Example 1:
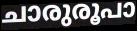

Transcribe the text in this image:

ചാരുരൂപാ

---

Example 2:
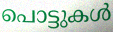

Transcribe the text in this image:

പൊട്ടുകൾ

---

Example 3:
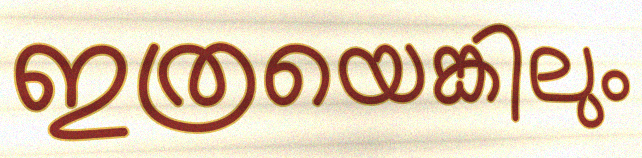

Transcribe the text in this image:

ഇത്രയെങ്കിലും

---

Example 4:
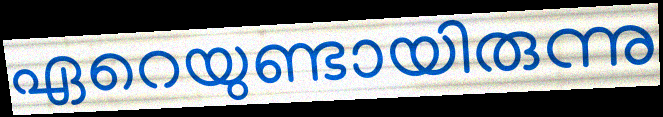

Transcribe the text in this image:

ഏറെയുണ്ടായിരുന്നു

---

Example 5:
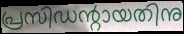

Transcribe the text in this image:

പ്രസിഡന്റായതിനു